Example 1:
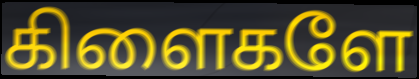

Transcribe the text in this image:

கிளைகளே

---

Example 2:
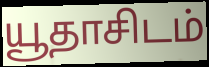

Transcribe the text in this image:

யூதாசிடம்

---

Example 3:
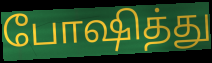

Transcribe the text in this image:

போஷித்து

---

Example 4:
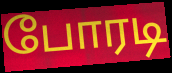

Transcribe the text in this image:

போரடி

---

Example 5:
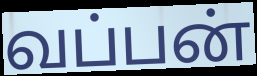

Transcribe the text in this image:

வப்பன்